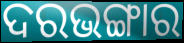
ଦରଭଙ୍ଗାର